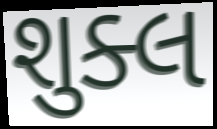
શુક્લ